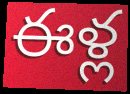
ఈళ్ల